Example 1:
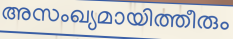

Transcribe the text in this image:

അസംഖ്യമായിത്തീരും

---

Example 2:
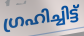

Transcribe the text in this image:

ഗ്രഹിച്ചിട്ട്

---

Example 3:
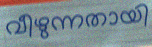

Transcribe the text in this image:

വീഴുന്നതായി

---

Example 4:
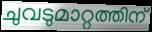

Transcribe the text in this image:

ചുവടുമാറ്റത്തിന്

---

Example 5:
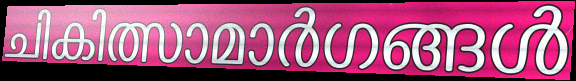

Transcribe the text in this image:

ചികിത്സാമാർഗങ്ങൾ